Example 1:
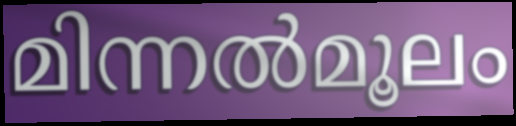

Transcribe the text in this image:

മിന്നൽമൂലം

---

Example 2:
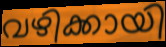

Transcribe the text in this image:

വഴിക്കായി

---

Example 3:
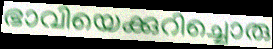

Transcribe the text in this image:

ഭാവിയെക്കുറിച്ചൊരു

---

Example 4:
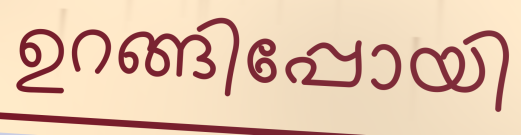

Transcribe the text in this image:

ഉറങ്ങിപ്പോയി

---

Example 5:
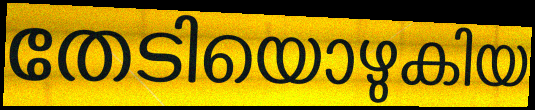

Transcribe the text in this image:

തേടിയൊഴുകിയ